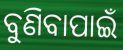
ବୁଣିବାପାଇଁ